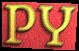
PY